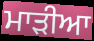
ਮਾੜੀਆ